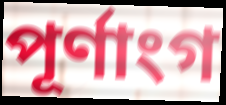
পূৰ্ণাংগ